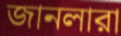
জানলারা